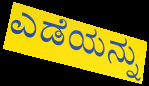
ಎಡೆಯನ್ನು